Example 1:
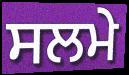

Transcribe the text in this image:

ਸਲਮੇ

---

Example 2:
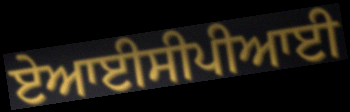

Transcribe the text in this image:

ਏਆਈਸੀਪੀਆਈ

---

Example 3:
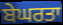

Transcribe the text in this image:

ਬੇਘਰਤਾ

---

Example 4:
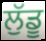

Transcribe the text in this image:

ਲੁੱਡੂ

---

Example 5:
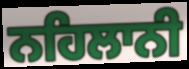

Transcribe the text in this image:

ਨਹਿਲਾਨੀ